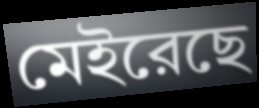
মেইরেছে